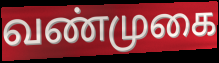
வண்முகை